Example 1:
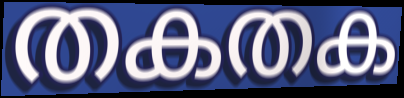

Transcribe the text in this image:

തകതക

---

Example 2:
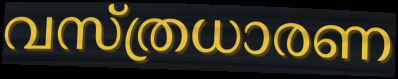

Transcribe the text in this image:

വസ്ത്രധാരണ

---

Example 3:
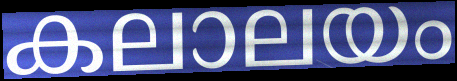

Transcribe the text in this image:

കലാലയം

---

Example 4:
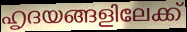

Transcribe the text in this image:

ഹൃദയങ്ങളിലേക്ക്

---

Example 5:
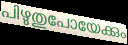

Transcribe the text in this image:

പിഴുതുപോയേക്കും